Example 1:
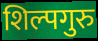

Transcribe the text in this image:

शिल्पगुरु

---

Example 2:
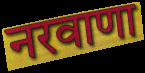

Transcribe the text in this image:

नरवाणा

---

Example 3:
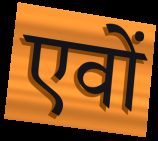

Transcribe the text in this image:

एवों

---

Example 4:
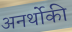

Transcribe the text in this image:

अनर्थोकी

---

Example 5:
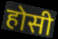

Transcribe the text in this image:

होसी